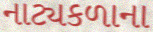
નાટ્યકળાના